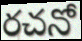
రచనో